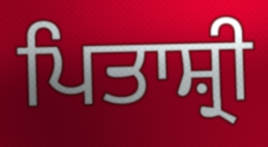
ਪਿਤਾਸ਼੍ਰੀ